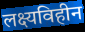
लक्ष्यविहीन